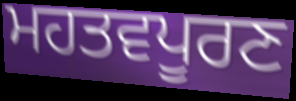
ਮਹਤਵਪੂਰਣ